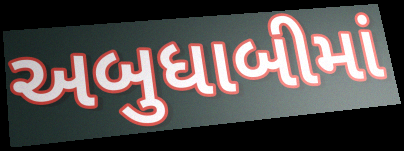
અબુધાબીમાં